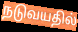
நடுவயதில்